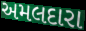
અમલદારા